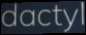
dactyl